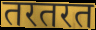
तरतरत